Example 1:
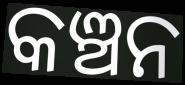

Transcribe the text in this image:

କଞ୍ଚନ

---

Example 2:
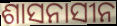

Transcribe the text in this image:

ଶାସନାସୀନ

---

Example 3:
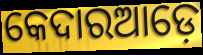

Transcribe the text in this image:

କେଦାରଆଡ଼େ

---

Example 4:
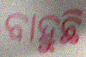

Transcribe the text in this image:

ବାହୁଛି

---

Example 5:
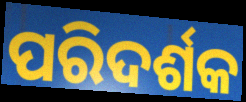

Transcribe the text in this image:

ପରିଦର୍ଶକ